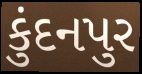
કુંદનપુર